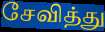
சேவித்து